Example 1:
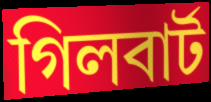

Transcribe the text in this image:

গিলবাৰ্ট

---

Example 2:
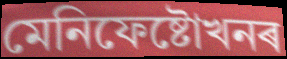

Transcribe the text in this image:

মেনিফেষ্টোখনৰ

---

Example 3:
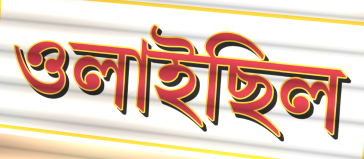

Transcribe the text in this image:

ওলাইছিল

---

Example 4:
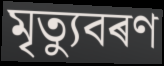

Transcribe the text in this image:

মৃত্যুবৰণ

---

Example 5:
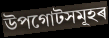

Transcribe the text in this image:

উপগোটসমূহৰ